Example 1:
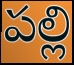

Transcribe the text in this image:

పల్లి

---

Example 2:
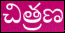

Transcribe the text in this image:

చిత్రణ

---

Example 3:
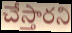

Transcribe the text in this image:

చేస్తారని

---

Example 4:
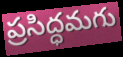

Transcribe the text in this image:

ప్రసిద్ధమగు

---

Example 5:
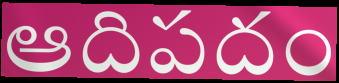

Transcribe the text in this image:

ఆదిపదం